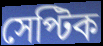
সেপ্টিক